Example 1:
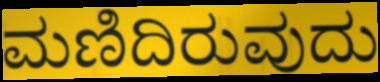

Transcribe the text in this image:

ಮಣಿದಿರುವುದು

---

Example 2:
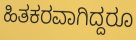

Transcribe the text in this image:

ಹಿತಕರವಾಗಿದ್ದರೂ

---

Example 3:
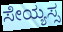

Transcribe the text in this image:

ಸೇಯ್ಯಸ್ಸ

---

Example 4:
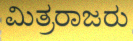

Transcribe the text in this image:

ಮಿತ್ರರಾಜರು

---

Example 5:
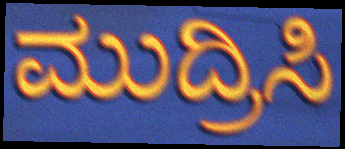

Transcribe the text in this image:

ಮುದ್ರಿಸಿ